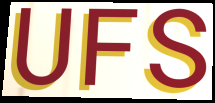
UFS